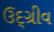
ઉદ્ગ્રીવ